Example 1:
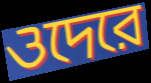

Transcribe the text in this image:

ওদেরে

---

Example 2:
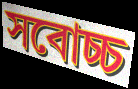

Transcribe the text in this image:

সবোচ্চ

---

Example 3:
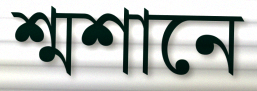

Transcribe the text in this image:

শ্মশানে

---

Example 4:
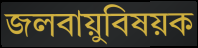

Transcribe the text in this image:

জলবায়ুবিষয়ক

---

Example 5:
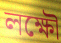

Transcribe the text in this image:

লক্ষৌ